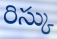
రిస్కు